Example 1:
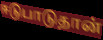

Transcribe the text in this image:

ஈடுபாடுதான்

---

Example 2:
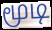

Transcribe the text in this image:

மூடி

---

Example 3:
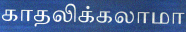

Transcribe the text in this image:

காதலிக்கலாமா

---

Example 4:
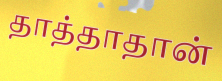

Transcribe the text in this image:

தாத்தாதான்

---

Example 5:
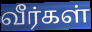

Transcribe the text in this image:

வீர்கள்